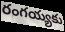
రంగయ్యకు